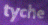
tyche